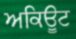
ਅਕਿਊਟ